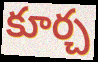
కూర్చ